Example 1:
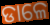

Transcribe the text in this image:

ଡାଳେ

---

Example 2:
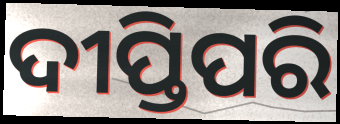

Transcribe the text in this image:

ଦୀପ୍ତିପରି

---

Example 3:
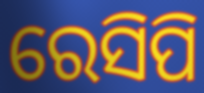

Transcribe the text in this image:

ରେସିପି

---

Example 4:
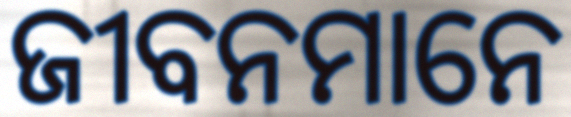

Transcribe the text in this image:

ଜୀବନମାନେ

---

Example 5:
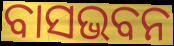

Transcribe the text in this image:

ବାସଭବନ